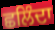
ਛਲਿੰਦਾ